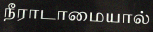
நீராடாமையால்